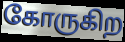
கோருகிற